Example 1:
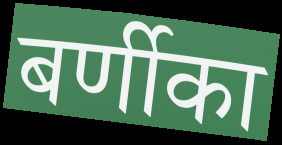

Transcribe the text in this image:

बर्णीका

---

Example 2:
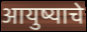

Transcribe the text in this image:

आयुष्याचे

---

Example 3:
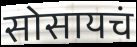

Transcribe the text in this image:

सोसायचं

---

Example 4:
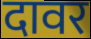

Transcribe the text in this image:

दावर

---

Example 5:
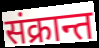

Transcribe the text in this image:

संक्रान्त